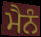
ਮੈਨੰ